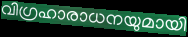
വിഗ്രഹാരാധനയുമായി